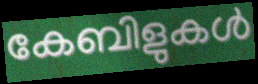
കേബിളുകൾ